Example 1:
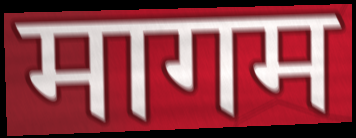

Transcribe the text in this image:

मागम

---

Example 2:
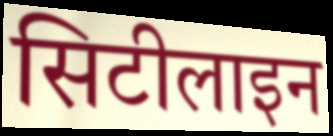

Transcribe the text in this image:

सिटीलाइन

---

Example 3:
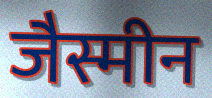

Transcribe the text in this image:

जैस्‍मीन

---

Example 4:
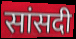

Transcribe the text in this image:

सांसदी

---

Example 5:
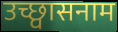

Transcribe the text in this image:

उच्छ्वासनाम